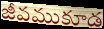
జీవముకూడ